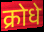
क्रोधे